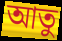
আতু